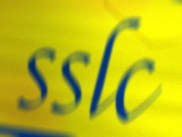
sslc